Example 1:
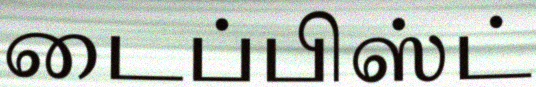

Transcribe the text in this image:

டைப்பிஸ்ட்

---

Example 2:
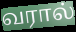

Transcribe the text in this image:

வரால்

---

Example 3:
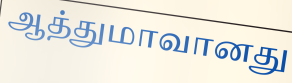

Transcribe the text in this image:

ஆத்துமாவானது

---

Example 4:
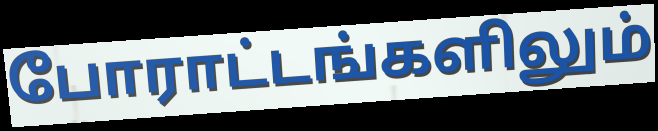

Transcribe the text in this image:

போராட்டங்களிலும்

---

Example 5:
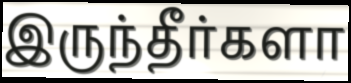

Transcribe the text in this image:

இருந்தீர்களா